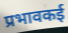
प्रभावकई